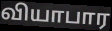
வியாபார